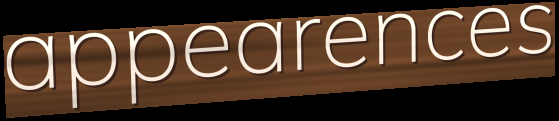
appearences